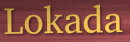
Lokada